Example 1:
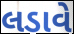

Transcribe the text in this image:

લડાવે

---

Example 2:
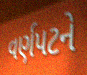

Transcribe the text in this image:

વર્ણપટને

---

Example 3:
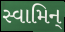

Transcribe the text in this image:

સ્વામિન્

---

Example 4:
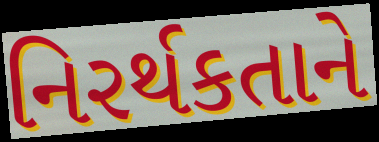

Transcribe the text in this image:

નિરર્થકતાને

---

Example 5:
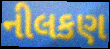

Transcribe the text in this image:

નીલકણ